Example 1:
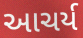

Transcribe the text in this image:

આચર્ય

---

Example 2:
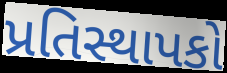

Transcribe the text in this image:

પ્રતિસ્થાપકો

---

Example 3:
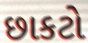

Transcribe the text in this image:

છાકટો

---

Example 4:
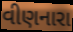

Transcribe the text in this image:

વીણનારા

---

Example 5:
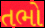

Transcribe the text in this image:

તભો